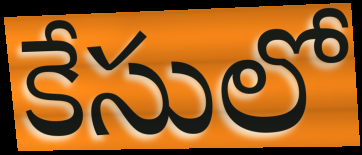
కేసులో